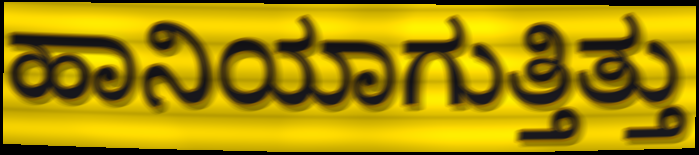
ಹಾನಿಯಾಗುತ್ತಿತ್ತು